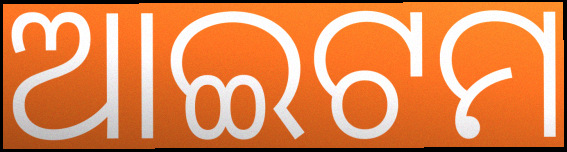
ଆଇଟମ